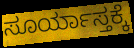
ಸೂರ್ಯಾಸ್ತಕ್ಕೆ